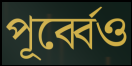
পূর্ব্বেও